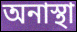
অনাস্থা